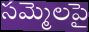
సమ్మెలపై